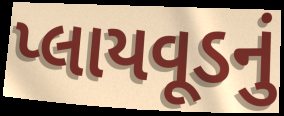
પ્લાયવૂડનું